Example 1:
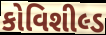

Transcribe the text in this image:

કોવિશીલ્ડ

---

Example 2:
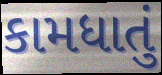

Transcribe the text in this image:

કામધાતું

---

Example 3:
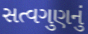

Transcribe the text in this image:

સત્વગુણનું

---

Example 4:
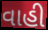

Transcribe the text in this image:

વાહી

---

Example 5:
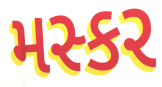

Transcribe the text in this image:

મસ્કર